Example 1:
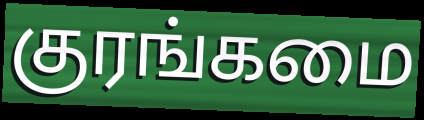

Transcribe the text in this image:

குரங்கமை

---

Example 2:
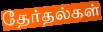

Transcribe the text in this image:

தேர்தல்கள்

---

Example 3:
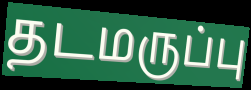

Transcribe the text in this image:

தடமருப்பு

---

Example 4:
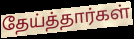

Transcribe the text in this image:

தேய்த்தார்கள்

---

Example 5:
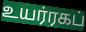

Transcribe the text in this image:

உயர்ரகப்